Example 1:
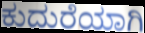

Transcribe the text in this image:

ಕುದುರೆಯಾಗಿ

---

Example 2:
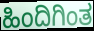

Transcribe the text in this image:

ಹಿಂದಿಗಿಂತ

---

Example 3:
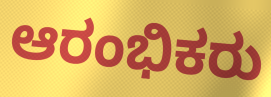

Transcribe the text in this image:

ಆರಂಭಿಕರು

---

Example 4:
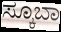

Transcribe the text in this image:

ಸ್ಕೂಬಾ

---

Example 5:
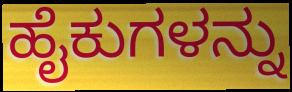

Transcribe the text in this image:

ಹೈಕುಗಳನ್ನು